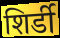
शिर्डी